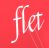
flet